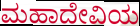
ಮಹಾದೇವಿಯ